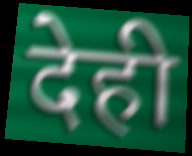
देही